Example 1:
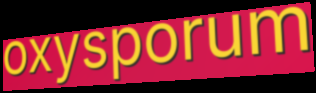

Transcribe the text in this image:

oxysporum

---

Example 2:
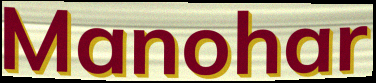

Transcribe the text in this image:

Manohar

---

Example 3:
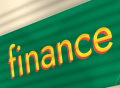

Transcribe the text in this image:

finance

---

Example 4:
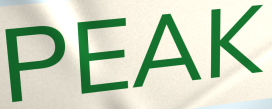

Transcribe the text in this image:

PEAK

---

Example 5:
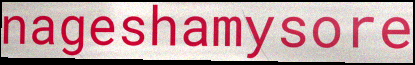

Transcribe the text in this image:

nageshamysore